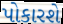
પોકારશે